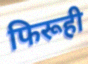
फिरूही